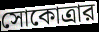
সোকোত্রার